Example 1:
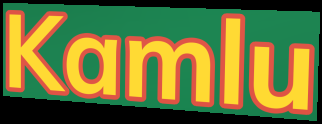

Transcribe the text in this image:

Kamlu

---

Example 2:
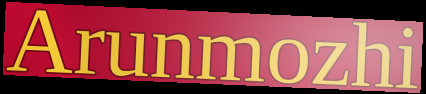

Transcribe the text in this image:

Arunmozhi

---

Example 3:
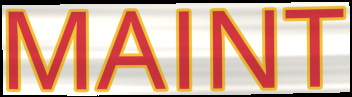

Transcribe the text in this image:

MAINT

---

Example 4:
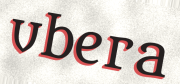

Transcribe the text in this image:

ubera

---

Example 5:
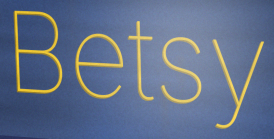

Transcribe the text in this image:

Betsy